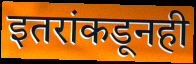
इतरांकडूनही